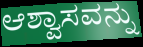
ಆಶ್ವಾಸವನ್ನು